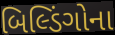
બિલ્ડિંગોના